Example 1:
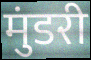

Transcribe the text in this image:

मुंडरी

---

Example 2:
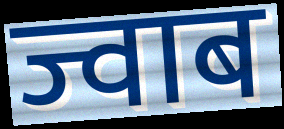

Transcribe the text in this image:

ज्वाब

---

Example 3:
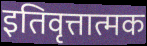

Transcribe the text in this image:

इतिवृत्तात्मक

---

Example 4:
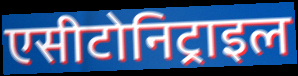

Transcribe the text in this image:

एसीटोनिट्राइल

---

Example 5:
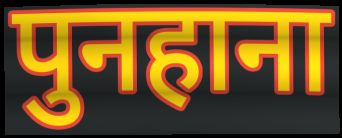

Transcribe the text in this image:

पुनहाना